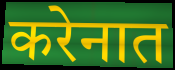
करेनात